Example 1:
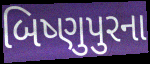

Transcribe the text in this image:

બિષ્ણુપુરના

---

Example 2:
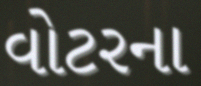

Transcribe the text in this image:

વોટરના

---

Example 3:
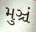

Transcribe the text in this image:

મુઞ્ચં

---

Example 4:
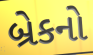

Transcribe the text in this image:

બ્રેકનો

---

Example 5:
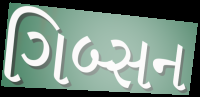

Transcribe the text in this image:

ગિબ્સન